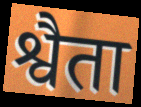
श्वैता